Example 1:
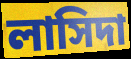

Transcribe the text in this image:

লাসিদা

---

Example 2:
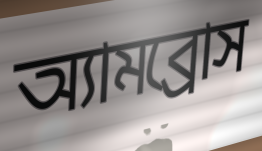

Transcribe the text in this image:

অ্যামব্রোস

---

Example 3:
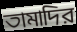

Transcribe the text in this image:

তামাদির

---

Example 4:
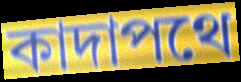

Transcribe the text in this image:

কাদাপথে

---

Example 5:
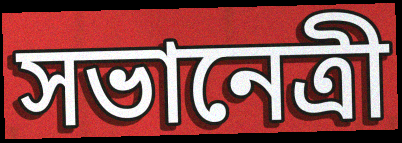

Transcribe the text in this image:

সভানেত্রী